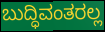
ಬುದ್ಧಿವಂತರಲ್ಲ